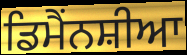
ਡਿਮੈਂਨਸ਼ੀਆ